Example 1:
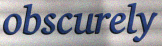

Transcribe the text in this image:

obscurely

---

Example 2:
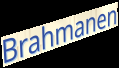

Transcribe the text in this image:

Brahmanen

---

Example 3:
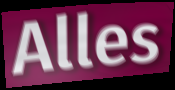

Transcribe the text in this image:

Alles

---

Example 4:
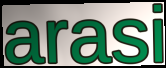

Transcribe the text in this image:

arasi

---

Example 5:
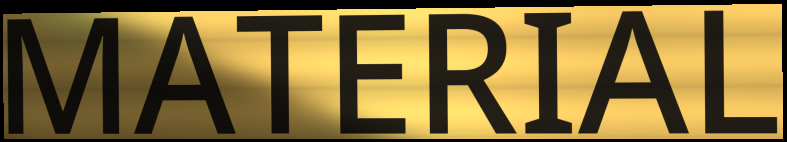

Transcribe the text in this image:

MATERIAL